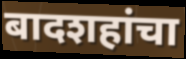
बादशहांचा